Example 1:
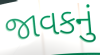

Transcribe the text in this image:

જાવકનું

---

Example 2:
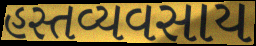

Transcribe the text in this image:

હસ્તવ્યવસાય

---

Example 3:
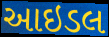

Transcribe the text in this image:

આઇડલ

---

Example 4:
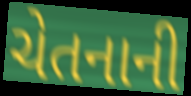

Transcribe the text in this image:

ચેતનાની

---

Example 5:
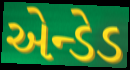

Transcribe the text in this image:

એન્ડેડ